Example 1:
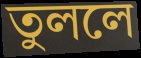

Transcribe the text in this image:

তুললে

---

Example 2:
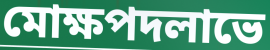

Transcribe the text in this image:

মোক্ষপদলাভে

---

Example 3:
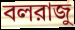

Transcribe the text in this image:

বলরাজু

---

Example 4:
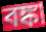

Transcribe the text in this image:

বঙ্কা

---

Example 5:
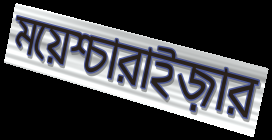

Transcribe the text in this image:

ময়েশ্চারাইজ়ার